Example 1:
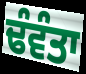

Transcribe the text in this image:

ਢੰਵੰਤਾ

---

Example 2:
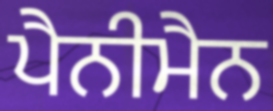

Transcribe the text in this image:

ਪੈਨੀਮੈਨ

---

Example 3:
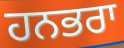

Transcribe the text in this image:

ਹਨਭਰਾ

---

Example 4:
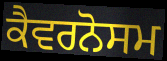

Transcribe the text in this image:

ਕੈਵਰਨੋਸਮ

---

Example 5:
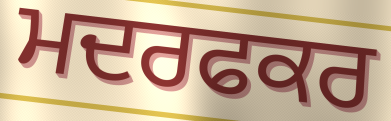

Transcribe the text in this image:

ਮਦਰਫਕਰ